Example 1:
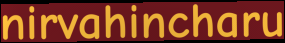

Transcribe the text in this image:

nirvahincharu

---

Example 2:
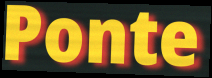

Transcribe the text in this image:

Ponte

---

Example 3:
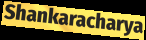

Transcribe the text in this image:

Shankaracharya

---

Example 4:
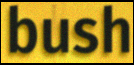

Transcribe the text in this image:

bush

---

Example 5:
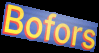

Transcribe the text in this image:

Bofors